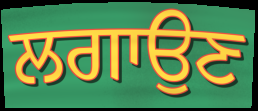
ਲਗਾਉਣ